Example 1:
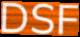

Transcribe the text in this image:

DSF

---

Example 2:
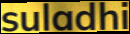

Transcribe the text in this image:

suladhi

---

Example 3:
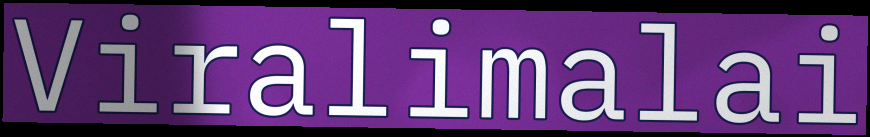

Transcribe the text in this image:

Viralimalai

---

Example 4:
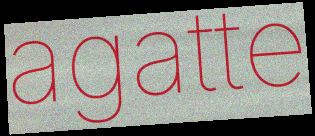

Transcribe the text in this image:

agatte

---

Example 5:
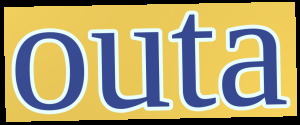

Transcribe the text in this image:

outa